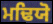
ਮਢਿਯੋ